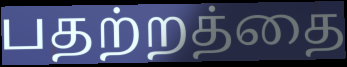
பதற்றத்தை